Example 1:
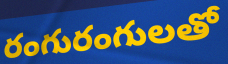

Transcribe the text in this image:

రంగురంగులతో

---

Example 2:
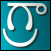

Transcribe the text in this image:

గ్రా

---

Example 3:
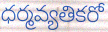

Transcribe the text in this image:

ధర్మవ్యతికరో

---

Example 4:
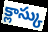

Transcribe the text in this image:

క్లాస్కు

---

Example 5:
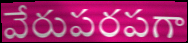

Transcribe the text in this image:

వేరుపరపగా